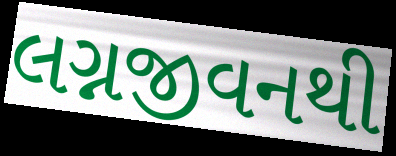
લગ્નજીવનથી